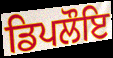
ਡਿਪਲੌਇ